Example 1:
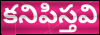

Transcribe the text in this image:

కనిపిస్తవి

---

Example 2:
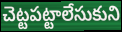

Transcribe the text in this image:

చెట్టపట్టాలేసుకుని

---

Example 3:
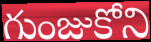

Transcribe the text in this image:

గుంజుకోని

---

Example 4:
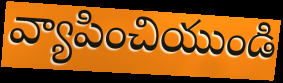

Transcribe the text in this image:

వ్యాపించియుండి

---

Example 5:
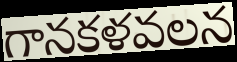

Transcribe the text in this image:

గానకళవలన